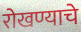
रोखण्याचे